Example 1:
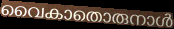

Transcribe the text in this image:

വൈകാതൊരുനാൾ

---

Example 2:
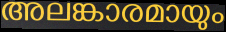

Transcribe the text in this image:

അലങ്കാരമായും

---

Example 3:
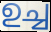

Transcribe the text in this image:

ഉച്ച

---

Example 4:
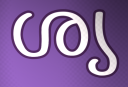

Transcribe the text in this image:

ശ്യ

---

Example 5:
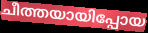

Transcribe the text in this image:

ചീത്തയായിപ്പോയ